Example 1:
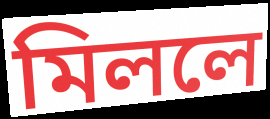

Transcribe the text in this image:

মিললে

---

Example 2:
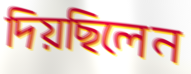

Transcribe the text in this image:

দিয়ছিলেন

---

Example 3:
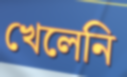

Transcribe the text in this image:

খেলেনি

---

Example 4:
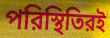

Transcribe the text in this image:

পরিস্থিতিরই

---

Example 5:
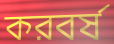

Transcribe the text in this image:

করবর্ষ